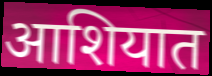
आशियात